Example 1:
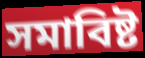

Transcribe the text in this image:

সমাবিষ্ট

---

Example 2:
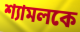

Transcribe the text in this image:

শ্যামলকে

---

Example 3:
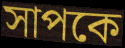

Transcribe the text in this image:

সাপকে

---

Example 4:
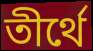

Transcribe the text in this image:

তীর্থে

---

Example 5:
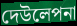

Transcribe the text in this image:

দেউলেপনা